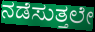
ನಡೆಸುತ್ತಲೇ